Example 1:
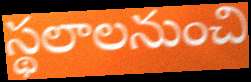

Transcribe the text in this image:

స్థలాలనుంచి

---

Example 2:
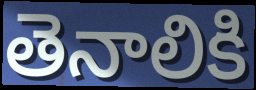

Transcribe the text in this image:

తెనాలికి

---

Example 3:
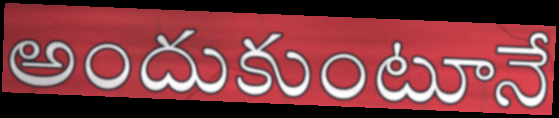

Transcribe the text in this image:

అందుకుంటూనే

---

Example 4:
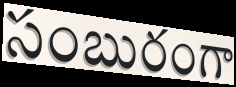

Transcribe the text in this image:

సంబురంగా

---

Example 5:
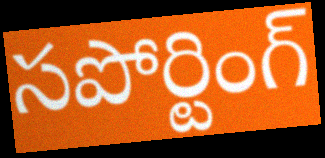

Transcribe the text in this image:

సపోర్టింగ్